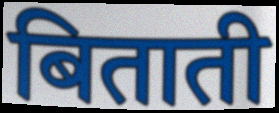
बिताती